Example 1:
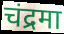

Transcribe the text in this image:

चंद्रमा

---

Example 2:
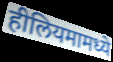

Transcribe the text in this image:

हीलियमामध्ये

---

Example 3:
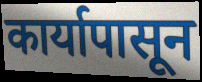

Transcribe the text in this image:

कार्यापासून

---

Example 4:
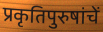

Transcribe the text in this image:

प्रकृतिपुरुषांचें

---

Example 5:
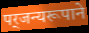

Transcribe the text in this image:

पर्जन्यरूपाने